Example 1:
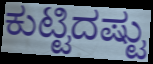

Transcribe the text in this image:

ಕುಟ್ಟಿದಷ್ಟು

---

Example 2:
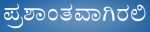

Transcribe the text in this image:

ಪ್ರಶಾಂತವಾಗಿರಲಿ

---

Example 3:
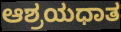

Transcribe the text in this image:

ಆಶ್ರಯಧಾತ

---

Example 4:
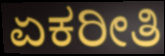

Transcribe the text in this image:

ಏಕರೀತಿ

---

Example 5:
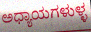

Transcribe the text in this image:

ಅಧ್ಯಾಯಗಳುಳ್ಳ